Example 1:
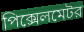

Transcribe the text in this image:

পিক্সেলমেটর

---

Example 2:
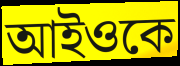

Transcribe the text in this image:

আইওকে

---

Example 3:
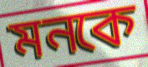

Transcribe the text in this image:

মনকে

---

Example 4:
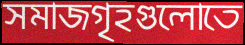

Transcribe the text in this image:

সমাজগৃহগুলোতে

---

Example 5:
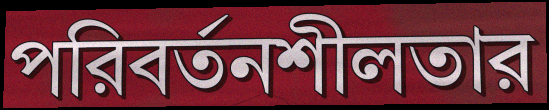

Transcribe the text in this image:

পরিবর্তনশীলতার